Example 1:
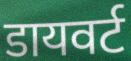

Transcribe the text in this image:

डायवर्ट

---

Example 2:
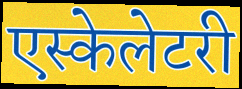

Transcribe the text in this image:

एस्केलेटरी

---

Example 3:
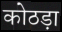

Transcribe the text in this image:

कोठड़ा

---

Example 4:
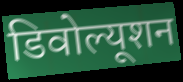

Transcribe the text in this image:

डिवोल्यूशन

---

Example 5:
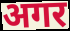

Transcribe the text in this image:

अगर